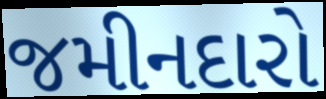
જમીનદારો